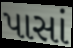
પાસાં